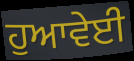
ਹੁਆਵੇਈ